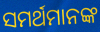
ସମର୍ଥମାନଙ୍କ